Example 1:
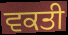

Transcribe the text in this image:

ਵਕਤੀ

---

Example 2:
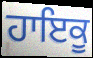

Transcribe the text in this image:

ਹਾਇਕੂ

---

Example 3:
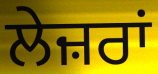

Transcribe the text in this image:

ਲੇਜ਼ਰਾਂ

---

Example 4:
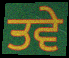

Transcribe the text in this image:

ਤਵੇ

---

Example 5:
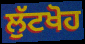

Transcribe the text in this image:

ਲੁੱਟਖੋਹ